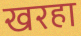
खरहा